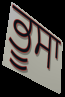
ਭੂਸਾ